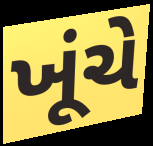
ખૂંચે